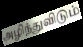
அழிந்துவிடும்